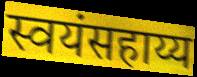
स्वयंसहाय्य